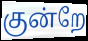
குன்றே